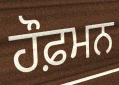
ਹੌਫ਼ਮਨ